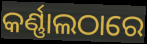
କର୍ଣ୍ଣାଲଠାରେ